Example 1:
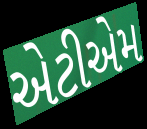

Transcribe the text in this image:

એટીએમ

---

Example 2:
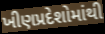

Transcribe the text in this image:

ખીણપ્રદેશોમાંથી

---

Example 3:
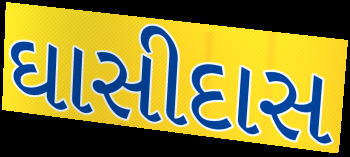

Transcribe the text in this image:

ઘાસીદાસ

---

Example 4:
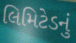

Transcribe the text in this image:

લિમિટેડનું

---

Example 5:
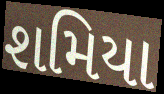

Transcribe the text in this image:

શમિયા